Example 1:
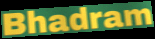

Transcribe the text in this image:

Bhadram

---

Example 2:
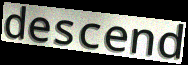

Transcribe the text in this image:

descend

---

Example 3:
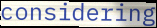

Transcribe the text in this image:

considering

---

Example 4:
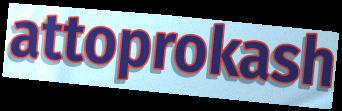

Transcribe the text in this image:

attoprokash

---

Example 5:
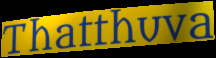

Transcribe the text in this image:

Thatthuva